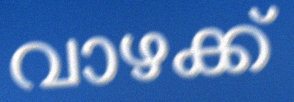
വാഴക്ക്